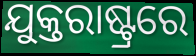
ଯୁକ୍ତରାଷ୍ଟ୍ରରେ